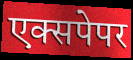
एक्सपेपर